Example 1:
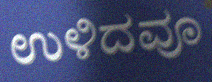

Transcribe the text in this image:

ಉಳಿದವೂ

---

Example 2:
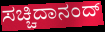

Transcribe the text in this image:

ಸಚ್ಚಿದಾನಂದ್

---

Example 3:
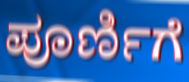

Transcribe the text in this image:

ಪೂರ್ಣಿಗೆ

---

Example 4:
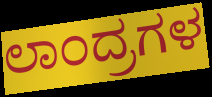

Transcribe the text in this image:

ಲಾಂದ್ರಗಳ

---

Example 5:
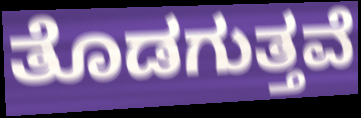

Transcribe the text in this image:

ತೊಡಗುತ್ತವೆ